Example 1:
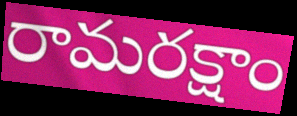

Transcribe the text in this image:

రామరక్షాం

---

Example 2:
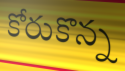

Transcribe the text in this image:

కోరుకొన్న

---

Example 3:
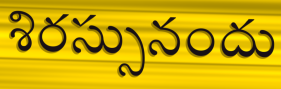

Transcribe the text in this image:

శిరస్సునందు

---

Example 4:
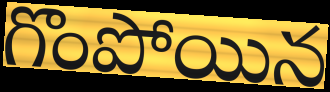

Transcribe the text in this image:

గొంపోయిన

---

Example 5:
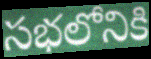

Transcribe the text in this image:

సభలోనికి